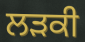
ਲੜਕੀ